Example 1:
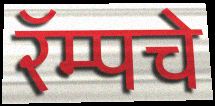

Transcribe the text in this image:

रॅम्पचे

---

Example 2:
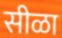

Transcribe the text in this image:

सीळा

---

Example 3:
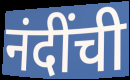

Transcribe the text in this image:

नंदींची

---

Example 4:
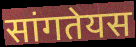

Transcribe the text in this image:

सांगतेयस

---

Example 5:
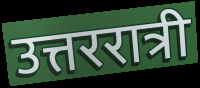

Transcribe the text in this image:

उत्तररात्री